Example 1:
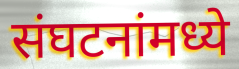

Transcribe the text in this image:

संघटनांमध्ये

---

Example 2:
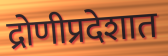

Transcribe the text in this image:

द्रोणीप्रदेशात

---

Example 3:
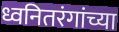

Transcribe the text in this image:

ध्वनितरंगांच्या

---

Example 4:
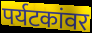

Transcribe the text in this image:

पर्यटकांवर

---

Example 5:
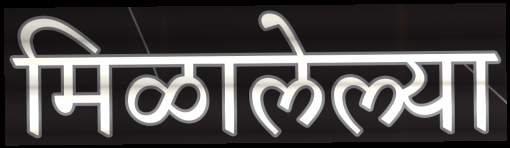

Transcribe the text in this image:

मिळालेल्या